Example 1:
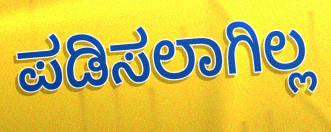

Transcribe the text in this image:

ಪಡಿಸಲಾಗಿಲ್ಲ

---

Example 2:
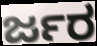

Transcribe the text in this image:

ರ್ಜರ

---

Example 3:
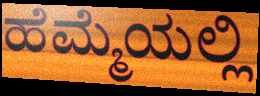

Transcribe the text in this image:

ಹೆಮ್ಮೆಯಲ್ಲಿ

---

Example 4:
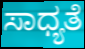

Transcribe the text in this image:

ಸಾಧ್ಯತೆ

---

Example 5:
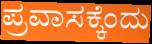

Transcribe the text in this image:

ಪ್ರವಾಸಕ್ಕೆಂದು